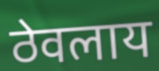
ठेवलाय